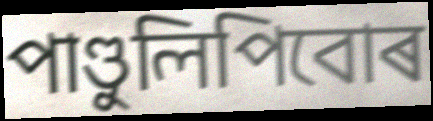
পাণ্ডুলিপিবোৰ